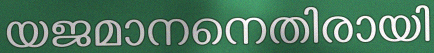
യജമാനനെതിരായി